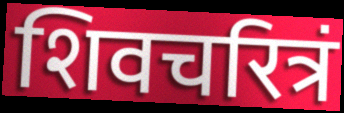
शिवचरित्रं